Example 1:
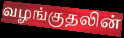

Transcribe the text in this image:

வழங்குதலின்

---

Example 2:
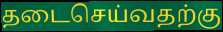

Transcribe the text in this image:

தடைசெய்வதற்கு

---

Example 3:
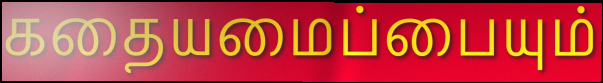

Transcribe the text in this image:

கதையமைப்பையும்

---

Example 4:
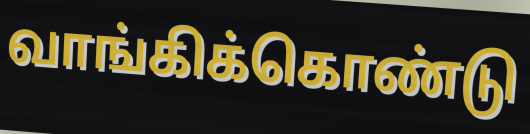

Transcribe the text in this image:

வாங்கிக்கொண்டு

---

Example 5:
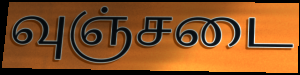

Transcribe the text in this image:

வுஞ்சடை